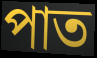
পাত